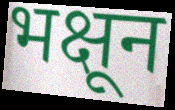
भक्षून